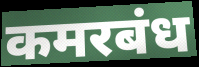
कमरबंध